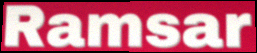
Ramsar